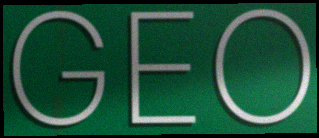
GEO